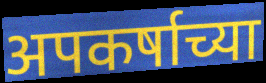
अपकर्षाच्या